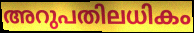
അറുപതിലധികം